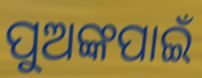
ପୁଅଙ୍କପାଇଁ